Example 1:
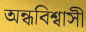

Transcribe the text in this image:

অন্ধবিশ্বাসী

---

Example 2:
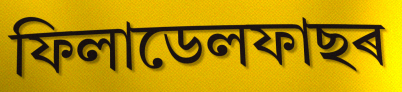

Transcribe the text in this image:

ফিলাডেলফাছৰ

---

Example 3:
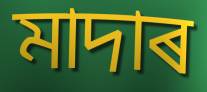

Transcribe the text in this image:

মাদাৰ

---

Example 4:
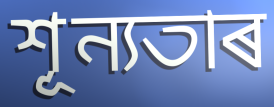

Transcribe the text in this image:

শূন্যতাৰ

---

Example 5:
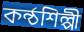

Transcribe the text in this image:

কন্ঠশিল্পী